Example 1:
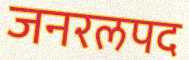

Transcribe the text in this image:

जनरलपद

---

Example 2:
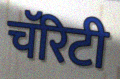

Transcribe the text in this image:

चॅरिटी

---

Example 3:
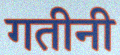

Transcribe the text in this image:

गतीनी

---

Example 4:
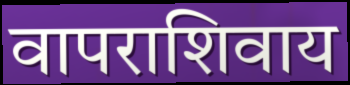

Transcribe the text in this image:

वापराशिवाय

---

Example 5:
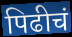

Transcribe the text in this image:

पिढीचं